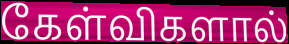
கேள்விகளால்